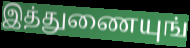
இத்துணையுங்